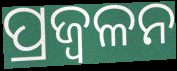
ପ୍ରଜ୍ବଳନ